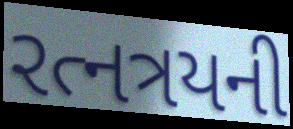
રત્નત્રયની